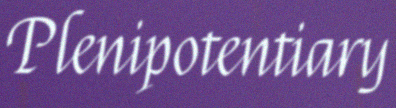
Plenipotentiary